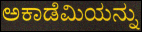
ಅಕಾಡೆಮಿಯನ್ನು